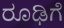
ರೂಢಿಗೆ